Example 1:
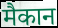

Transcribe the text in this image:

मैकान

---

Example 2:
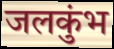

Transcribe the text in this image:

जलकुंभ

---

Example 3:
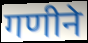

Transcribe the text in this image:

गणीने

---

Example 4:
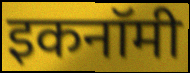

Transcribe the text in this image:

इकनॉमी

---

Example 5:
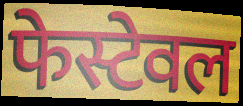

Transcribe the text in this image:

फेस्टेवल